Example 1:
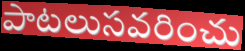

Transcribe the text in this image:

పాటలుసవరించు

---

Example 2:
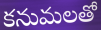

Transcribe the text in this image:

కనుమలతో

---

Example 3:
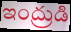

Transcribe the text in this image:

ఇంద్రుడి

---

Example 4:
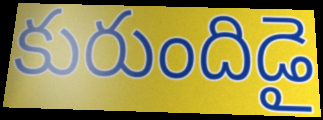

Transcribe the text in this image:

కురుందిడై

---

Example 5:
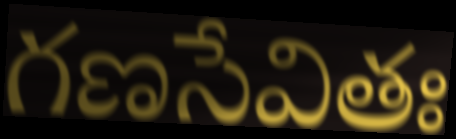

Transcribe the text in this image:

గణసేవితః